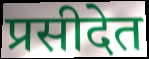
प्रसीदेत